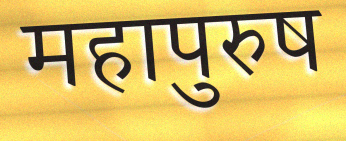
महापुरुष